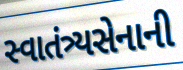
સ્વાતંત્ર્યસેનાની